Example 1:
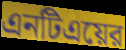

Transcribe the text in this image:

এনটিএয়ের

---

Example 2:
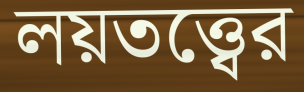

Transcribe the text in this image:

লয়তত্ত্বের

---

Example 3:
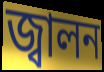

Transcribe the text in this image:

জ্বালন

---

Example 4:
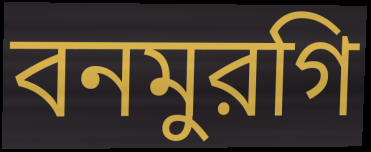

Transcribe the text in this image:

বনমুরগি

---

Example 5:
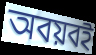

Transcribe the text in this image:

অবয়বই